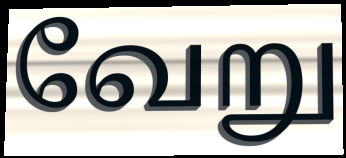
வேறு